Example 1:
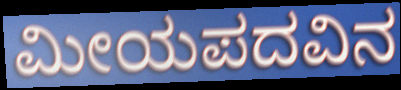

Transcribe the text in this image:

ಮೀಯಪದವಿನ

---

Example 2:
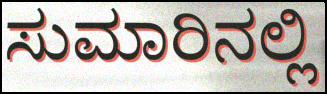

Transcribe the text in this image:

ಸುಮಾರಿನಲ್ಲಿ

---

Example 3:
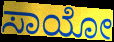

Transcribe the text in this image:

ಸಾಯೋ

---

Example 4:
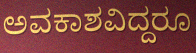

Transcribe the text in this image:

ಅವಕಾಶವಿದ್ದರೂ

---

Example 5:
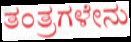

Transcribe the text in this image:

ತಂತ್ರಗಳೇನು